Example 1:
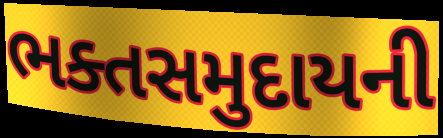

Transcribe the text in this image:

ભક્તસમુદાયની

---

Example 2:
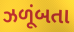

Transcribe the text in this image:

ઝળૂંબતા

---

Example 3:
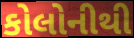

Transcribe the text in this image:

કોલોનીથી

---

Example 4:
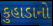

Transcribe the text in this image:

કુહાડાનો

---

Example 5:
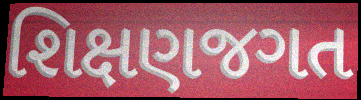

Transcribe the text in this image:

શિક્ષણજગત